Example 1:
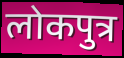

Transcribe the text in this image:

लोकपुत्र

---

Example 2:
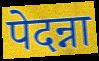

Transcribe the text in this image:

पेदन्ना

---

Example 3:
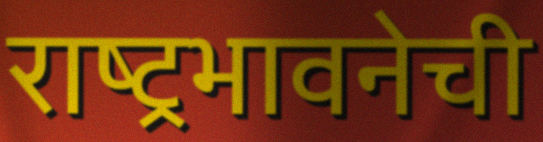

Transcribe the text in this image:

राष्ट्रभावनेची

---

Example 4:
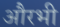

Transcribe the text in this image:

औरभी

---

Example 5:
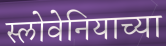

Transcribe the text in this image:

स्लोवेनियाच्या